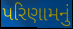
પરિણામનું